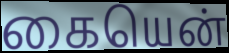
கையென்